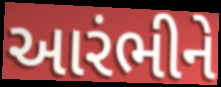
આરંભીને